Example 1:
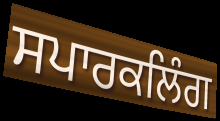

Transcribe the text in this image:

ਸਪਾਰਕਲਿੰਗ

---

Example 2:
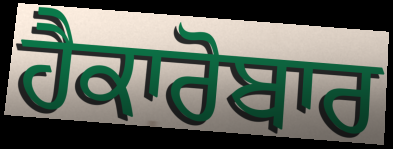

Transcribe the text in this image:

ਹੈਕਾਰੋਬਾਰ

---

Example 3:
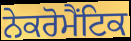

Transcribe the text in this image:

ਨੇਕਰੋਮੈਂਟਿਕ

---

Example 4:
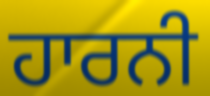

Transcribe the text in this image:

ਹਾਰਨੀ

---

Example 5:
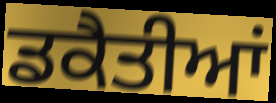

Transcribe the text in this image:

ਡਕੈਤੀਆਂ